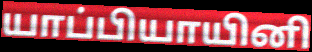
யாப்பியாயினி